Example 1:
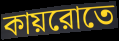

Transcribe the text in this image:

কায়রোতে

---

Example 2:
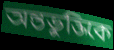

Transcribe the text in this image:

অন্তর্ভুক্তিকে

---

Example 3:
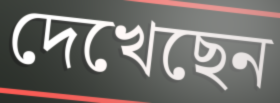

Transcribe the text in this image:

দেখেছেন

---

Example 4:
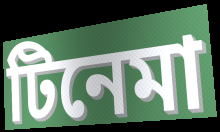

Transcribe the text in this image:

টিনেমা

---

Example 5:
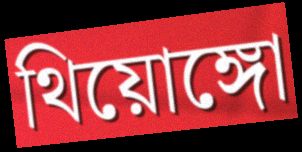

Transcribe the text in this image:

থিয়োঙ্গো